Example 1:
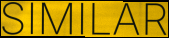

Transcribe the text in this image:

SIMILAR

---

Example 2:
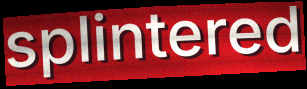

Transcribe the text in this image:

splintered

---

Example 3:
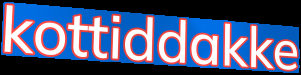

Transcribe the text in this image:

kottiddakke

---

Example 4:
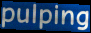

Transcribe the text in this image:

pulping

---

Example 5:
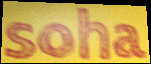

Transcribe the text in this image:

soha